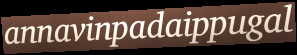
annavinpadaippugal